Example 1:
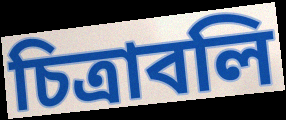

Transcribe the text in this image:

চিত্রাবলি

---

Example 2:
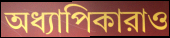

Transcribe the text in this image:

অধ্যাপিকারাও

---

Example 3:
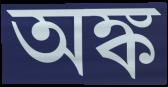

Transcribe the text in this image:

অঙ্ক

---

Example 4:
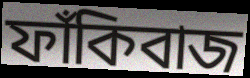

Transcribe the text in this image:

ফাঁকিবাজ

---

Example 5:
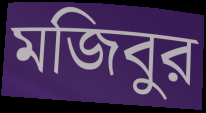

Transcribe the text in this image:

মজিবুর